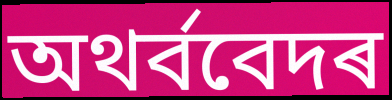
অথৰ্ববেদৰ